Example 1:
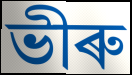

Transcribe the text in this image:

ভীৰু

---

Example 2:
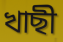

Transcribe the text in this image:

খাছী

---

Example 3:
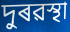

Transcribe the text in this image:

দুৰৱস্থা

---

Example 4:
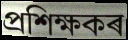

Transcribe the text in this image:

প্ৰশিক্ষকৰ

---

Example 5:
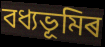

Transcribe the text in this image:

বধ্যভূমিৰ